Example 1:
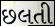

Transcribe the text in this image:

છલતી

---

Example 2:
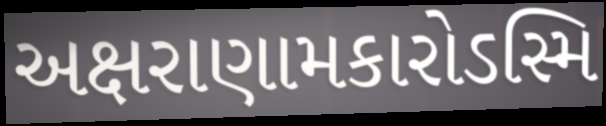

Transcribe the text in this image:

અક્ષરાણામકારોઽસ્મિ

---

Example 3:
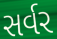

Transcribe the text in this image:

સર્વર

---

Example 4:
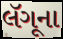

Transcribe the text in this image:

લૅગૂના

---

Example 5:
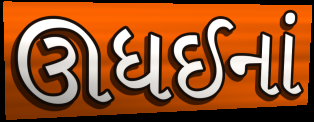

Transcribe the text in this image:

ઊધઈનાં